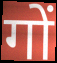
गों